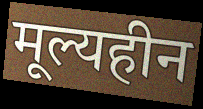
मूल्यहीन